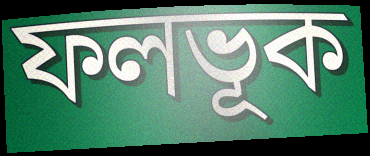
ফলভূক